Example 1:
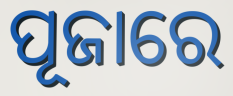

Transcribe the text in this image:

ପୂଜାରେ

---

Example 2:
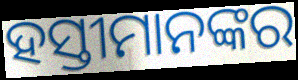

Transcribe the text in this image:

ହସ୍ତୀମାନଙ୍କର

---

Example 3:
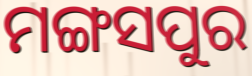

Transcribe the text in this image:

ମଙ୍ଗସପୁର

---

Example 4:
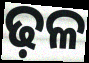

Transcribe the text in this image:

ଢ଼ଳ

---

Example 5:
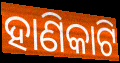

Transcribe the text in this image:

ହାଣିକାଟି